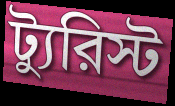
ট্যুরিস্ট